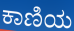
ಕಾಣಿಯ